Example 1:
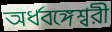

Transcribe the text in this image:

অর্ধবঙ্গেশ্বরী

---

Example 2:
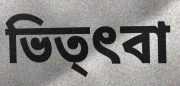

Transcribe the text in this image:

ভিত্ৎবা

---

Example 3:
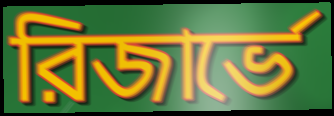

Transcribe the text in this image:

রিজার্ভে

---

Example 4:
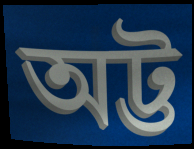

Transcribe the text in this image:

অট্ট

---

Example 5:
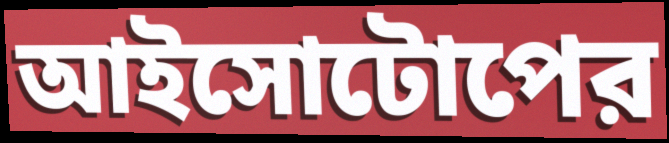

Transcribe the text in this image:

আইসোটোপের